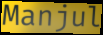
Manjul